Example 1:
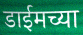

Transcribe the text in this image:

डाईमच्या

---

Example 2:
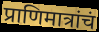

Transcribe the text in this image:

प्राणिमात्रांचं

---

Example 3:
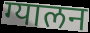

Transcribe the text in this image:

ग्यालन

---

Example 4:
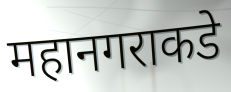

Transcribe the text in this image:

महानगराकडे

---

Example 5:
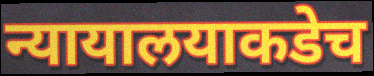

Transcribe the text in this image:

न्यायालयाकडेच